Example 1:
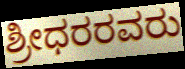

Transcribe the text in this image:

ಶ್ರೀಧರರವರು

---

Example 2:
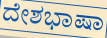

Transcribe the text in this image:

ದೇಶಭಾಷಾ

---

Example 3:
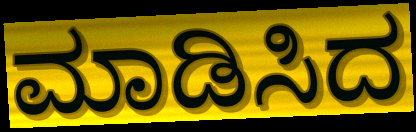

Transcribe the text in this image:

ಮಾಡಿಸಿದ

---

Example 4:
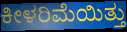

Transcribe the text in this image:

ಕೀಳರಿಮೆಯಿತ್ತು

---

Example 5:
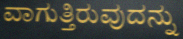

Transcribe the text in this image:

ವಾಗುತ್ತಿರುವುದನ್ನು